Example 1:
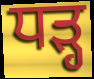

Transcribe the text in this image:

ਧੜ੍ਹ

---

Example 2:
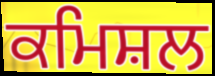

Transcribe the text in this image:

ਕਮਿਸ਼ਲ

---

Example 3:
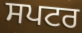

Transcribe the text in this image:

ਸਪਟਰ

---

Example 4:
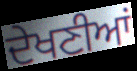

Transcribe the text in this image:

ਦੇਖਣੀਆਂ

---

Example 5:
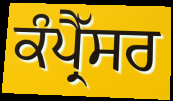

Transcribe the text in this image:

ਕੰਪ੍ਰੈੱਸਰ